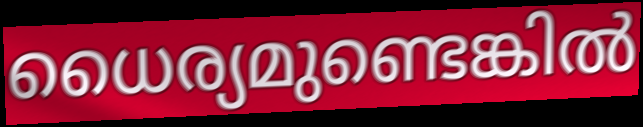
ധൈര്യമുണ്ടെങ്കിൽ